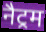
नैट्रम